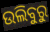
ଉଲିବୁରୁ